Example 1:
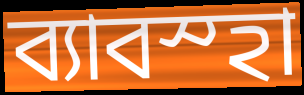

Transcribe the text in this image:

ব্যাবস্হা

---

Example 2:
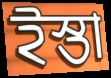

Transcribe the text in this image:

ইস্তা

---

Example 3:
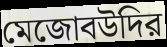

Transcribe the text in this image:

মেজোবউদির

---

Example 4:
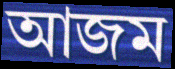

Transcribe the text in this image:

আজম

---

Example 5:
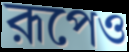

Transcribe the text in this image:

রূপেও